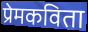
प्रेमकविता